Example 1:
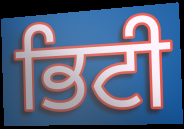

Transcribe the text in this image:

ਭਿਟੀ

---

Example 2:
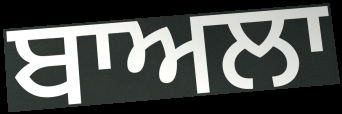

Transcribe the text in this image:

ਬਾਅਲਾ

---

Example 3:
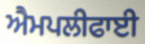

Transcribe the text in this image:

ਐਮਪਲੀਫਾਈ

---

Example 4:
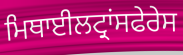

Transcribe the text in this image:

ਮਿਥਾਈਲਟ੍ਰਾਂਸਫੇਰੇਸ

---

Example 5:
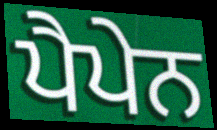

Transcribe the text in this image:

ਪੈਪੇਨ